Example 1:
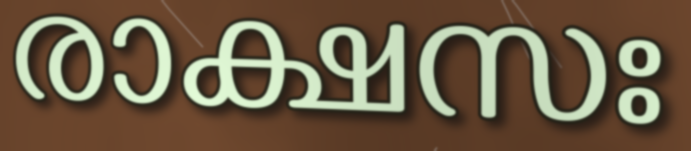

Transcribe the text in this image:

രാക്ഷസഃ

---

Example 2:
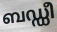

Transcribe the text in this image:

ബഡ്ഡീ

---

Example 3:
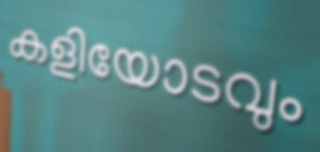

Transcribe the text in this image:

കളിയോടവും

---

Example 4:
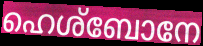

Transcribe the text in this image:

ഹെശ്ബോനേ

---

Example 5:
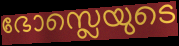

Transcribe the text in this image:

ഭോസ്ലെയുടെ